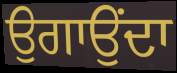
ਉਗਾਉਂਦਾ